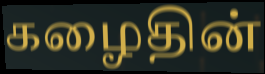
கழைதின்